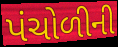
પંચોળીની